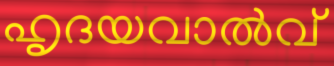
ഹൃദയവാൽവ്